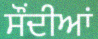
ਸੌਂਦੀਆਂ